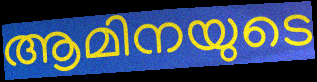
ആമിനയുടെ